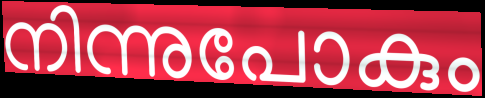
നിന്നുപോകും